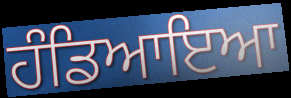
ਹੰਡਿਆਇਆ